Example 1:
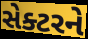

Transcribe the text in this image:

સેક્ટરને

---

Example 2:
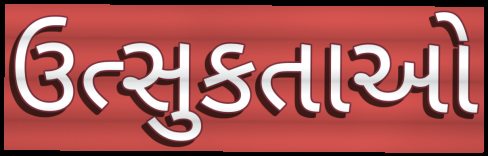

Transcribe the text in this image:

ઉત્સુકતાઓ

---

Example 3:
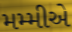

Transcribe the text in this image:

મમ્મીએ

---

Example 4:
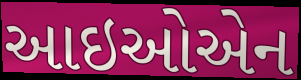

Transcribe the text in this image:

આઇઓએન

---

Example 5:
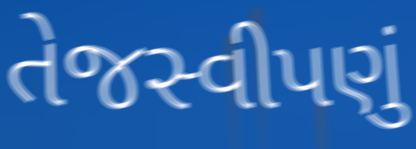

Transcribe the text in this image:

તેજસ્વીપણું